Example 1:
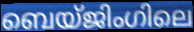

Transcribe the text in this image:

ബെയ്ജിംഗിലെ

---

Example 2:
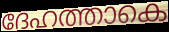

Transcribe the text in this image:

ദേഹത്താകെ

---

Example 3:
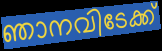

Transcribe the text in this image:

ഞാനവിടേക്ക്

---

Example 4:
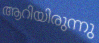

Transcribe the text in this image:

ആറിയിരുന്നു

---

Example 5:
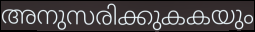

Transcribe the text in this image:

അനുസരിക്കുകകയും